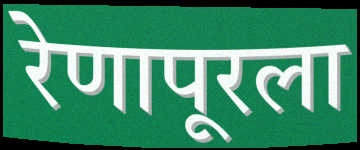
रेणापूरला